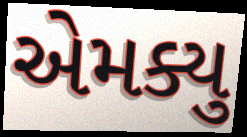
એમક્યુ